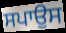
ਸਪਾਉਸ